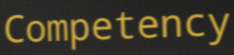
Competency